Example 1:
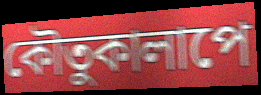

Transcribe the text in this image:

কৌতুকালাপে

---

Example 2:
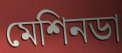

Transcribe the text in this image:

মেশিনডা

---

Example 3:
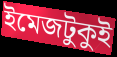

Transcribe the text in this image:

ইমেজটুকুই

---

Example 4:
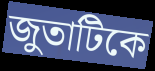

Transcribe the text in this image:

জুতাটিকে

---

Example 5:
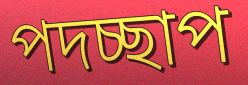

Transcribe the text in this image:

পদচ্ছাপ